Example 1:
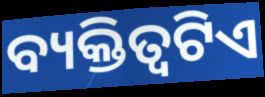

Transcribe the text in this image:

ବ୍ୟକ୍ତିତ୍ବଟିଏ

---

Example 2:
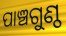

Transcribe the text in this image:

ପାଞ୍ଚଗୁଣ୍ଠ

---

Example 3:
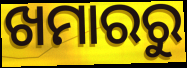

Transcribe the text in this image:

ଖମାରରୁ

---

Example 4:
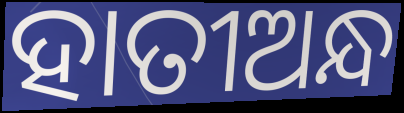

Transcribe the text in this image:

ହାତୀଅନ୍ଧ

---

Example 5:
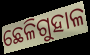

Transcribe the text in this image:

ଛେଳିଗୁହାଳ